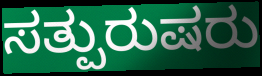
ಸತ್ಪುರುಷರು